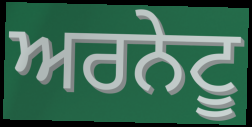
ਅਰਨੇਟੂ